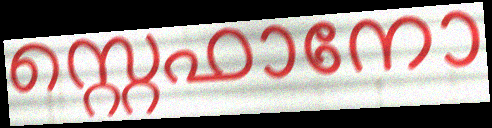
സ്റ്റെഫാനോ